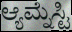
ಆ್ಯಮ್ನೆಸ್ಟಿ